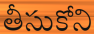
తీసుకోని